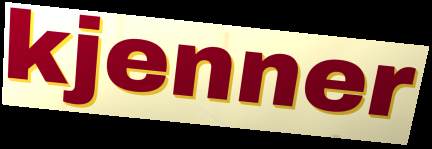
kjenner